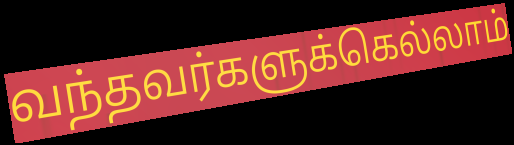
வந்தவர்களுக்கெல்லாம்